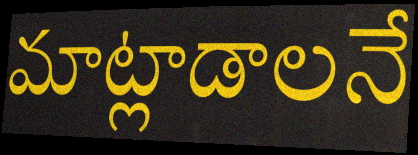
మాట్లాడాలనే